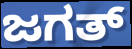
ಜಗತ್